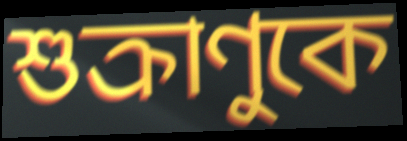
শুক্রাণুকে